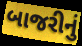
બાજરીનું